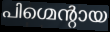
പിഗ്മെന്റായ